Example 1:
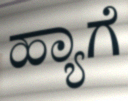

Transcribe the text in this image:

ಹ್ಯಾಗೆ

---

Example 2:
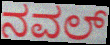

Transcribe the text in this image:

ನವಲ್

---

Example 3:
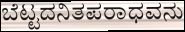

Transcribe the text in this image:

ಬೆಟ್ಟದನಿತಪರಾಧವನು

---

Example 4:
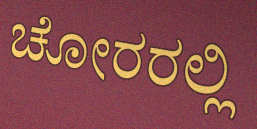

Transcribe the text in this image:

ಚೋರರಲ್ಲಿ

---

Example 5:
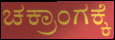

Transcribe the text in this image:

ಚಕ್ರಾಂಗಕ್ಕೆ